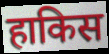
हाकिस